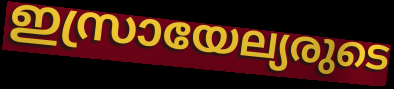
ഇസ്രായേല്യരുടെ